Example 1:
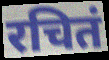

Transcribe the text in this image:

रचितं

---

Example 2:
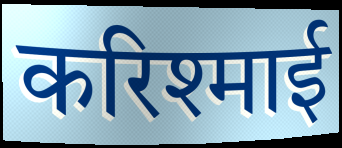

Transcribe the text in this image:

करिश्माई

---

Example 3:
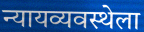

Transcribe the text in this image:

न्यायव्यवस्थेला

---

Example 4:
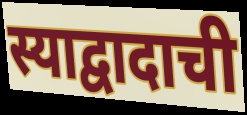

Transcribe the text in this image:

स्याद्वादाची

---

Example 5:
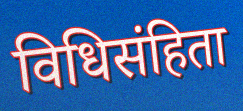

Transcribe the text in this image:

विधिसंहिता